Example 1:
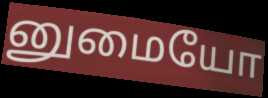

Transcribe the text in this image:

னுமையோ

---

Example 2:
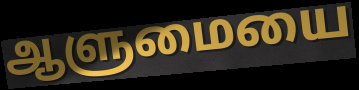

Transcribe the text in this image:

ஆளுமையை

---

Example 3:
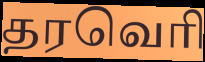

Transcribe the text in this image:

தரவெரி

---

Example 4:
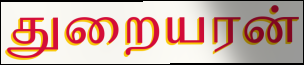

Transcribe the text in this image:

துறையரன்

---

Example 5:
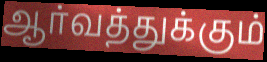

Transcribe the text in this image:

ஆர்வத்துக்கும்